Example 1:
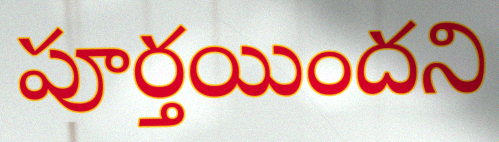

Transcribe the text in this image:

పూర్తయిందని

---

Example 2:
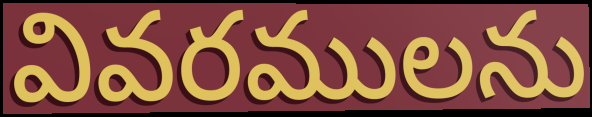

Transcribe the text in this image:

వివరములను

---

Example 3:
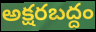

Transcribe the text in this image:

అక్షరబద్దం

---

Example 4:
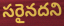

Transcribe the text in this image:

సరైనదని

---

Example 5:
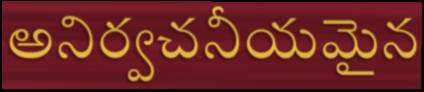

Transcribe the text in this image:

అనిర్వచనీయమైన